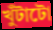
খুঁটাটো